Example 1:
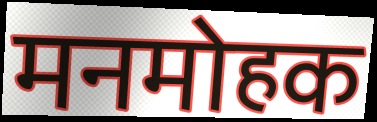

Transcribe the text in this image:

मनमोहक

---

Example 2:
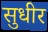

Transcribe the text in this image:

सुधीर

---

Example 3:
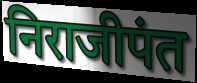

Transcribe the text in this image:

निराजीपंत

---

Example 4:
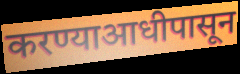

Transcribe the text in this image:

करण्याआधीपासून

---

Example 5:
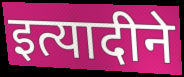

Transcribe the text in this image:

इत्यादीने